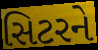
સિટરને